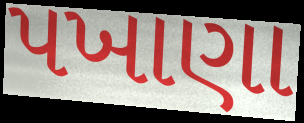
પખાણા